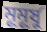
মূমূর্ষু